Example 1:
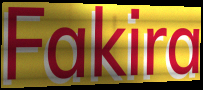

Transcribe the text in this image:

Fakira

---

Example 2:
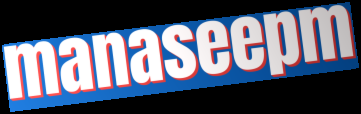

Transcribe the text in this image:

manaseepm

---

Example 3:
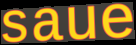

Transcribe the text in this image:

saue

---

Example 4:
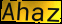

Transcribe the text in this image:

Ahaz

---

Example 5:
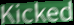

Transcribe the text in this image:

Kicked